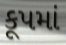
કૂપમાં